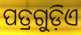
ପତ୍ରଗୁଡ଼ିଏ